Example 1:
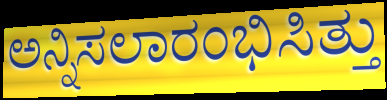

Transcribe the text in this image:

ಅನ್ನಿಸಲಾರಂಭಿಸಿತ್ತು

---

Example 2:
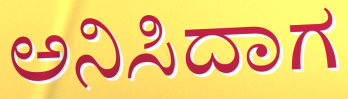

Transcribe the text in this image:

ಅನಿಸಿದಾಗ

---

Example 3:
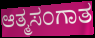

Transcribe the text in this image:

ಆತ್ಮಸಂಗಾತ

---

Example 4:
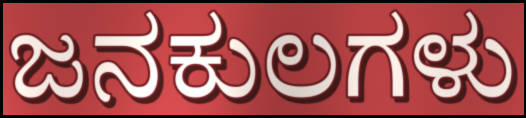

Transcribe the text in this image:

ಜನಕುಲಗಳು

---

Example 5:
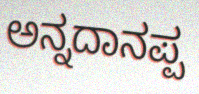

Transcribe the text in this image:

ಅನ್ನದಾನಪ್ಪ